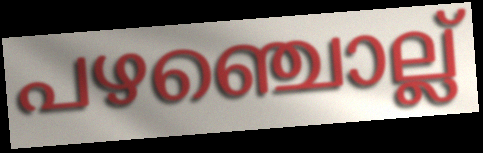
പഴഞ്ചൊല്ല്